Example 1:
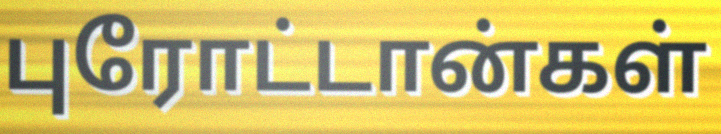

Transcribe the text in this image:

புரோட்டான்கள்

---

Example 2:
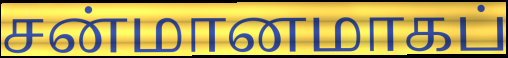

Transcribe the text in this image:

சன்மானமாகப்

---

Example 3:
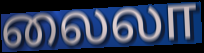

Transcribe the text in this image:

லைலா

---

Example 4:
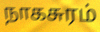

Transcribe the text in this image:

நாகசுரம்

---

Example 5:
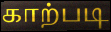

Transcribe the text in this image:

காற்படி